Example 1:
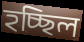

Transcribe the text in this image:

হচ্ছিল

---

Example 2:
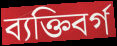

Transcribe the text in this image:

ব্যক্তিবর্গ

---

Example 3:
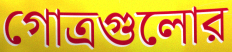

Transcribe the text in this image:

গোত্রগুলোর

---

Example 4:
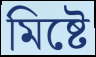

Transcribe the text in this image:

মিষ্টে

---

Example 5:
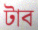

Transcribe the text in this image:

টাব